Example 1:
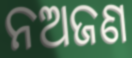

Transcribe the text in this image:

ନଅଜଣ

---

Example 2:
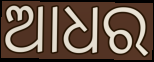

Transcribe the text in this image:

ଆଧର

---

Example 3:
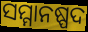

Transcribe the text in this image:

ସମ୍ମାନଷ୍ପଦ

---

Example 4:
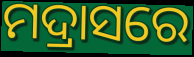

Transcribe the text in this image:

ମଦ୍ରାସରେ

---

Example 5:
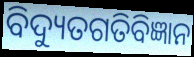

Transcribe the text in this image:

ବିଦ୍ୟୁତଗତିବିଜ୍ଞାନ